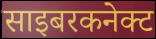
साइबरकनेक्ट